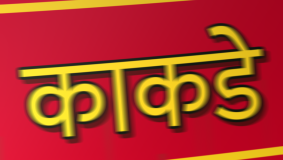
काकडे